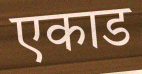
एकाड